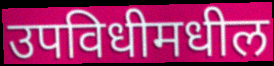
उपविधीमधील